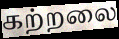
கற்றலை